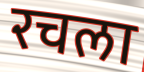
रचला